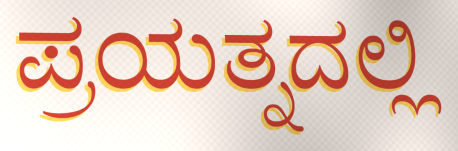
ಪ್ರಯತ್ನದಲ್ಲಿ